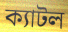
ক্যাটল